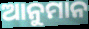
ଆନୁମାନ